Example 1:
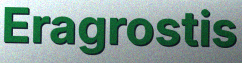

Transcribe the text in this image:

Eragrostis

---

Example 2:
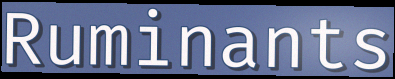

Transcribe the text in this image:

Ruminants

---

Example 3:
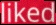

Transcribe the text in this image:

liked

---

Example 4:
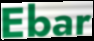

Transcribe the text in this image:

Ebar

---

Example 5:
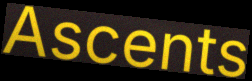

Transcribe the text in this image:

Ascents